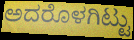
ಅದರೊಳಗಿಟ್ಟು